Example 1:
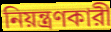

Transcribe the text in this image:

নিয়ন্ত্রণকারী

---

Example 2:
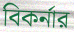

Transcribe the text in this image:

বিকর্নার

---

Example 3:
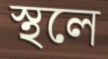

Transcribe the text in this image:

স্থলে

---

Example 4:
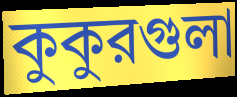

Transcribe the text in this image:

কুকুরগুলা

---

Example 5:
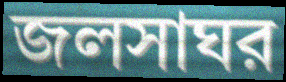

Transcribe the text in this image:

জলসাঘর